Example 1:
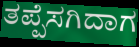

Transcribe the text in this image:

ತಪ್ಪೆಸಗಿದಾಗ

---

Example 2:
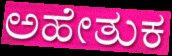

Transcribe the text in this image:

ಅಹೇತುಕ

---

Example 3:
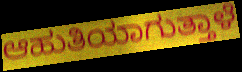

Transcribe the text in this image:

ಆಹುತಿಯಾಗುತ್ತಾಳೆ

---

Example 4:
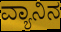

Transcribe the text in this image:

ವ್ಯಾನಿನ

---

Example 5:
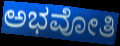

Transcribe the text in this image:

ಅಭವೋತಿ